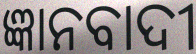
ଜ୍ଞାନବାଦୀ